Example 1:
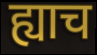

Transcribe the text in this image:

ह्याच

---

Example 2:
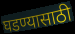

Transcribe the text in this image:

घडण्यासाठी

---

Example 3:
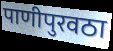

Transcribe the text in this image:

पाणीपुरवठा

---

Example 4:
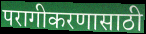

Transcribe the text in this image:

परागीकरणासाठी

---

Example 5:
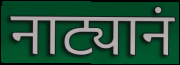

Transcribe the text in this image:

नाट्यानं